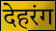
देहरंग